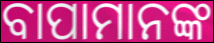
ବାପାମାନଙ୍କ